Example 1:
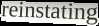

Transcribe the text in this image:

reinstating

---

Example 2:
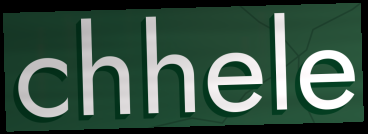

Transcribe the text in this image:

chhele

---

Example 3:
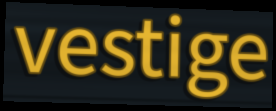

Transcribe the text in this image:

vestige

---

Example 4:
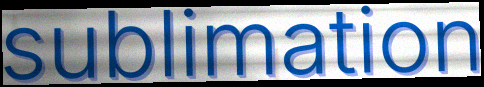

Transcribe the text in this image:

sublimation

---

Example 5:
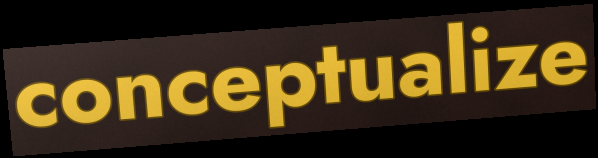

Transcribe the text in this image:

conceptualize